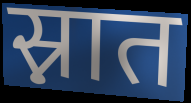
स्नात